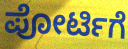
ಪೋರ್ಟಿಗೆ